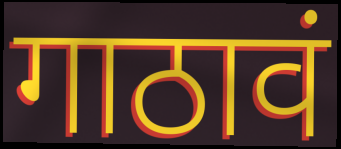
गाठावं